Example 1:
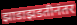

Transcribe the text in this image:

झाडाझडतीनंतर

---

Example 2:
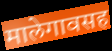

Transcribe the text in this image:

मालेगावसह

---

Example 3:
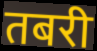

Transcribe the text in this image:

तबरी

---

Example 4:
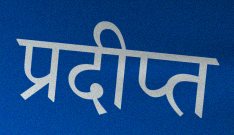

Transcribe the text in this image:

प्रदीप्त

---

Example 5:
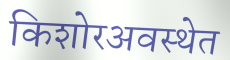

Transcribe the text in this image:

किशोरअवस्थेत